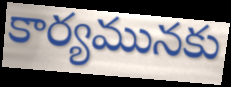
కార్యమునకు